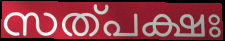
സത്പക്ഷഃ